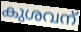
കുശവന്